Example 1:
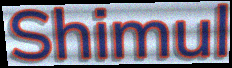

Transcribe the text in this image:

Shimul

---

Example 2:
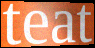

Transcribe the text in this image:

teat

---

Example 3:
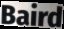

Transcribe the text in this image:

Baird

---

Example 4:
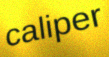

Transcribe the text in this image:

caliper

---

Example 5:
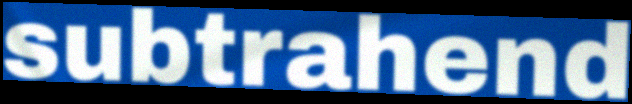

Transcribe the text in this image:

subtrahend